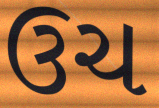
ઉચ